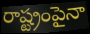
రాష్ట్రంపైనా